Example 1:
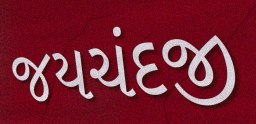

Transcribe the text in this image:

જયચંદજી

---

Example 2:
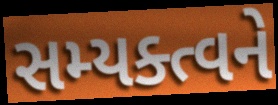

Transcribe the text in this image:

સમ્યક્ત્વને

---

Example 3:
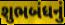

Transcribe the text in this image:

શુભબંધનું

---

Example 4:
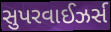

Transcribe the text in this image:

સુપરવાઈઝર્સ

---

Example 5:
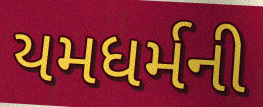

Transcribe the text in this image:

યમધર્મની